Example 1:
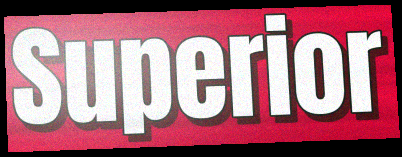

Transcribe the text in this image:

Superior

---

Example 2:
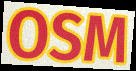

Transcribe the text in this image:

OSM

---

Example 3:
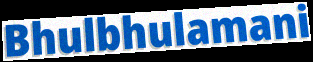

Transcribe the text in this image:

Bhulbhulamani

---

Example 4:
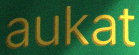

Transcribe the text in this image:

aukat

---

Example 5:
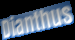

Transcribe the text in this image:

Dianthus